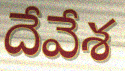
దేవేశ